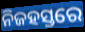
ନିଜହସ୍ତରେ